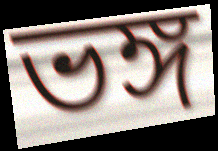
ভঙ্গ